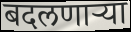
बदलणार्‍या